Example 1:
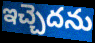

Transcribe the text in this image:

ఇచ్చెదను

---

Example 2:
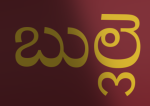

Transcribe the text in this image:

బుల్లె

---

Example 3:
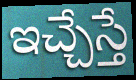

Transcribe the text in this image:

ఇచ్చేస్తే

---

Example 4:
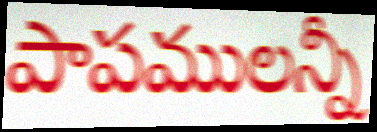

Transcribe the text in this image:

పాపములన్నీ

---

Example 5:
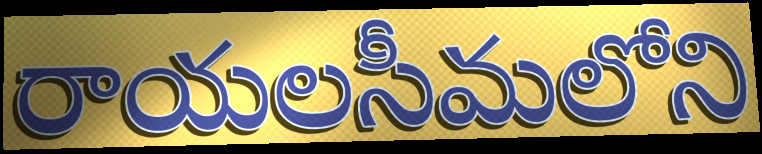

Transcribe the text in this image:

రాయలసీమలోని